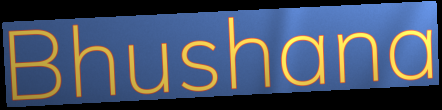
Bhushana